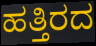
ಹತ್ತಿರದ